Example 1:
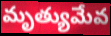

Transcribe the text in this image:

మృత్యుమేవ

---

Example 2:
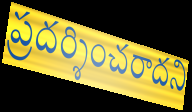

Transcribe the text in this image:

ప్రదర్శించరాదని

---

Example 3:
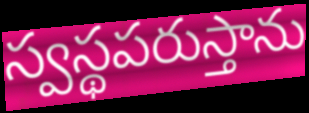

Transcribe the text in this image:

స్వస్థపరుస్తాను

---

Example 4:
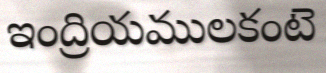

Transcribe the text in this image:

ఇంద్రియములకంటె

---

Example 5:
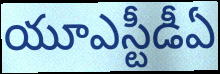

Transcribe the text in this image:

యూఎస్టీడీఏ